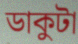
ডাকুটা